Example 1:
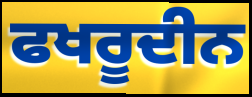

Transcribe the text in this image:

ਫਖਰੂਦੀਨ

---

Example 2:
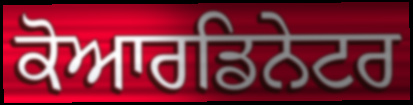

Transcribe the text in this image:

ਕੋਆਰਡਿਨੇਟਰ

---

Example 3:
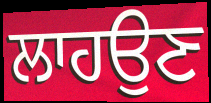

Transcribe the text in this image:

ਲਾਹਉਣ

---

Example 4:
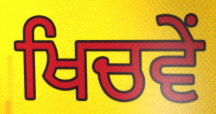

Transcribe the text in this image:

ਖਿਚਵੇਂ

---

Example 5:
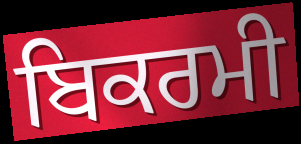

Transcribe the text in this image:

ਬਿਕਰਮੀ